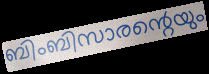
ബിംബിസാരന്റെയും